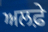
ਅਲਫ਼ੇ